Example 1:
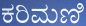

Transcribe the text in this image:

ಕರಿಮಣಿ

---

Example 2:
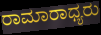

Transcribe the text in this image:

ರಾಮಾರಾಧ್ಯರು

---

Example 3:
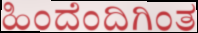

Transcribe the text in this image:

ಹಿಂದೆಂದಿಗಿಂತ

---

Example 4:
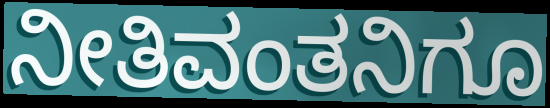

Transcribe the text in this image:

ನೀತಿವಂತನಿಗೂ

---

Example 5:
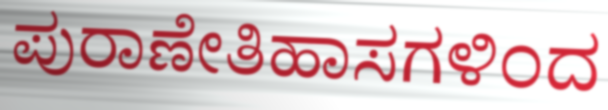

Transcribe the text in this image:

ಪುರಾಣೇತಿಹಾಸಗಳಿಂದ